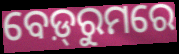
ବେଡ଼୍‌ରୁମରେ